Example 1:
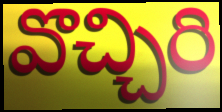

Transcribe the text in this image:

వొచ్చిరి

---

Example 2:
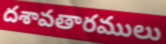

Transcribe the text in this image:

దశావతారములు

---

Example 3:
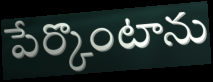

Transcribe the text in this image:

పేర్కొంటాను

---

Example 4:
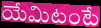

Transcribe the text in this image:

యేమిటంటే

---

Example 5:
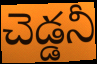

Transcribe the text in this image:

చెడ్డనీ